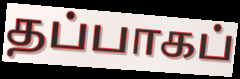
தப்பாகப்